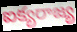
ఐక్యరాజ్య